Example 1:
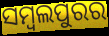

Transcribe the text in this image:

ସମ୍ୱଲପୁରର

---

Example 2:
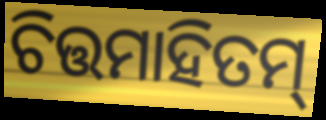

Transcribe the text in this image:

ଚିତ୍ତମାହିତମ୍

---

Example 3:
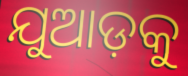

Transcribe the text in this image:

ଯୁଆଡ଼କୁ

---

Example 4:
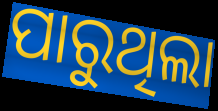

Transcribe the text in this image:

ପାରୁଥିଲା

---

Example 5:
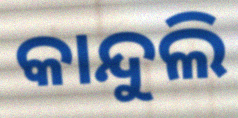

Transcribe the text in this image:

କାନ୍ଦୁଲି